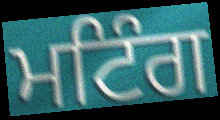
ਮਟਿੰਗ